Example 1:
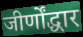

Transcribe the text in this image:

जीर्णोंद्धार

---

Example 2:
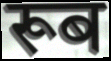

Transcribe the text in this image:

रूब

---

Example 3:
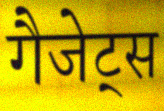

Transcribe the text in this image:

गैजेट्स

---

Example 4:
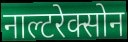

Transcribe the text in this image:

नाल्टरेक्सोन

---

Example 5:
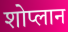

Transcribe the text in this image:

शोप्लान